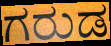
ಗರುಡ